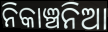
ନିକାଞ୍ଚନିଆ